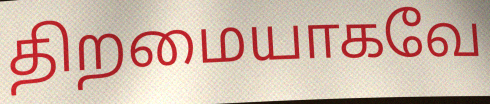
திறமையாகவே